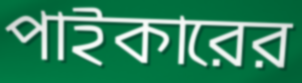
পাইকারের